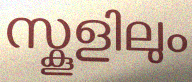
സ്കൂളിലും